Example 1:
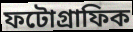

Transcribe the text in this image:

ফটোগ্রাফিক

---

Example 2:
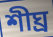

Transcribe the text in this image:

শীঘ্র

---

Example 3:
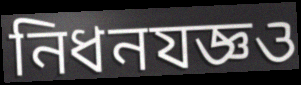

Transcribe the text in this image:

নিধনযজ্ঞও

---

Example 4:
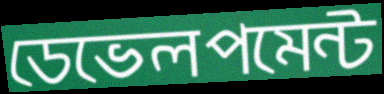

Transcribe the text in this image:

ডেভেলপমেন্ট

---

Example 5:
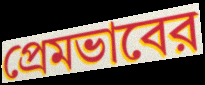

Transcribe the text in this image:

প্রেমভাবের